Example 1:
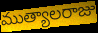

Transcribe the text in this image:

ముత్యాలరాజు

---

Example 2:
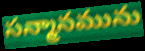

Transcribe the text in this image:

సన్మానమును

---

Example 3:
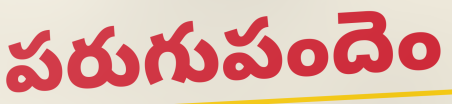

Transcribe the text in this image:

పరుగుపందెం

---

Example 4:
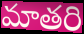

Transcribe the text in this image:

మాతరి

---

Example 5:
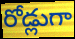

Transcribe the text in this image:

రోడ్లుగా